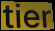
tier